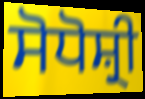
ਸੋਧੋਸ਼੍ਰੀ